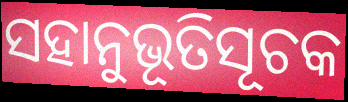
ସହାନୁଭୂତିସୂଚକ